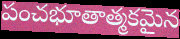
పంచభూతాత్మకమైన